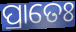
ପ୍ରାତେଃ